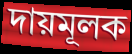
দায়মূলক